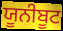
ਯੂਨੀਬੂਟ